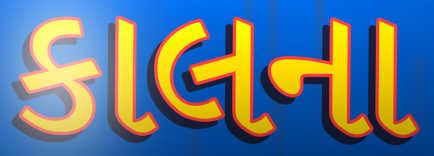
કાલના